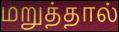
மறுத்தால்